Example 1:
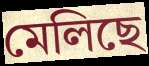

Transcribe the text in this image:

মেলিছে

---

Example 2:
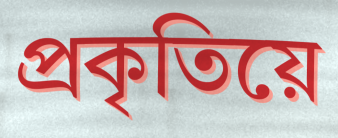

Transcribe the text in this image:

প্ৰকৃতিয়ে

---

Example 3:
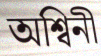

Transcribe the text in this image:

অশ্বিনী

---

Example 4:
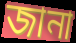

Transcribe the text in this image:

জানা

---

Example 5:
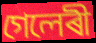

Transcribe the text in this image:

গেলেৰী